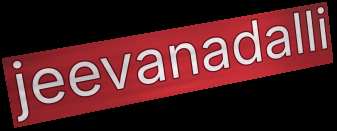
jeevanadalli